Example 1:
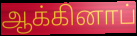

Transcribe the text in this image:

ஆக்கினாப்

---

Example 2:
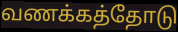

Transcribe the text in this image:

வணக்கத்தோடு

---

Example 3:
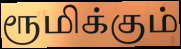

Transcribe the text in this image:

ரூமிக்கும்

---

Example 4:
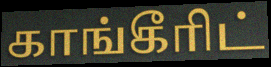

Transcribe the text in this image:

காங்கீரிட்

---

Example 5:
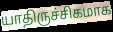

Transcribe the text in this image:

யாதிருச்சிகமாக